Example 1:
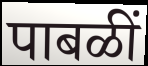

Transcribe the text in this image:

पाबळीं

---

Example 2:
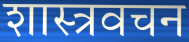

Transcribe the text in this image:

शास्त्रवचन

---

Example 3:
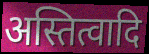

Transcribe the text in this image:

अस्तित्वादि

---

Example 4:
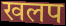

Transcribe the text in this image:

खलप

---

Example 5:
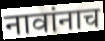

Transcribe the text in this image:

नावांनाच